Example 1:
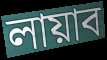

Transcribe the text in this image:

লায়াব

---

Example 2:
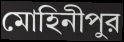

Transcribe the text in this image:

মোহিনীপুর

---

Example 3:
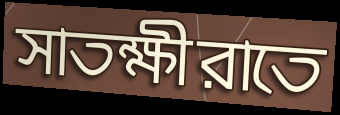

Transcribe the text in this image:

সাতক্ষীরাতে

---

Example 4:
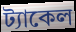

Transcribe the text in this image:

ট্যাকেল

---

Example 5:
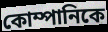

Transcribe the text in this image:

কোম্পানিকে